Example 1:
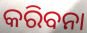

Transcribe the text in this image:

କରିବନା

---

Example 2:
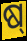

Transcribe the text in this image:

ଷ୍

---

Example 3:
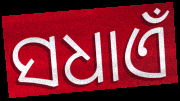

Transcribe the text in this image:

ସଧାଏଁ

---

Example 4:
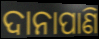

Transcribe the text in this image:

ଦାନାପାଣି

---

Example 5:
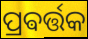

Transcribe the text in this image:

ପ୍ରଵର୍ତ୍ତକ